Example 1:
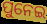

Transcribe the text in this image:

ପୁନେଇ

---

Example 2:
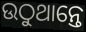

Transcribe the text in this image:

ଉଠୁଥାନ୍ତେ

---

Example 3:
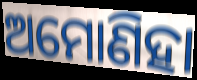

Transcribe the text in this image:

ଅମୋଣିହା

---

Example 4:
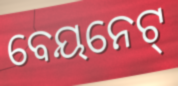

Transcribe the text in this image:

ବେୟନେଟ୍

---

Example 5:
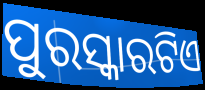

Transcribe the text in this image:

ପୁରସ୍କାରଟିଏ